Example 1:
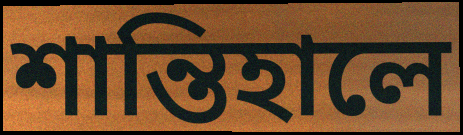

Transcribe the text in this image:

শান্তিহালে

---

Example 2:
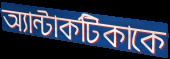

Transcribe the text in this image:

অ্যান্টার্কটিকাকে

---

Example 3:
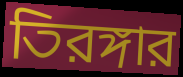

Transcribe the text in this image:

তিরঙ্গার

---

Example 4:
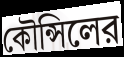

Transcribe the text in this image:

কৌন্সিলের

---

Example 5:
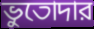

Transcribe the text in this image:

ভুতোদার